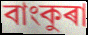
বাংকুৰা